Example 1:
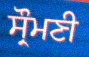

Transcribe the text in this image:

ਸ੍ਰੌਮਣੀ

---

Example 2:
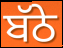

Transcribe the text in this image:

ਬੱਠੇ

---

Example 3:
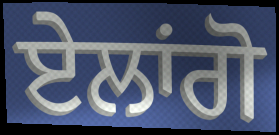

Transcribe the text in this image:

ਏਲਾਂਗੋ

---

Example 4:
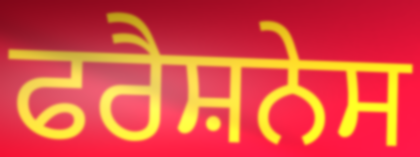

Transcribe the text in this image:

ਫਰੈਸ਼ਨੇਸ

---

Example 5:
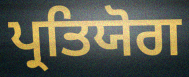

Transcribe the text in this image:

ਪ੍ਰਤਿਯੋਗ